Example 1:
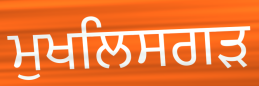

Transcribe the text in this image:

ਮੁਖਲਿਸਗੜ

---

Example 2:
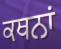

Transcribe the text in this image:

ਕਥਨਾਂ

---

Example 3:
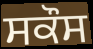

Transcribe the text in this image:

ਸਕੌਸ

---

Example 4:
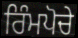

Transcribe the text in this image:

ਰਿੰਮਪੋਚੇ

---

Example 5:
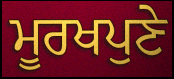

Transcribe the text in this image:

ਮੂਰਖਪੁਣੇ